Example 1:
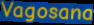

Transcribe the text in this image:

Vagosana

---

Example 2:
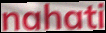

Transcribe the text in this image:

nahati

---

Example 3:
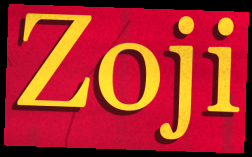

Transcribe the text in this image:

Zoji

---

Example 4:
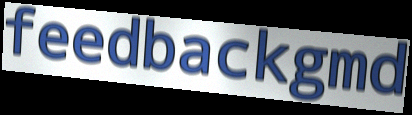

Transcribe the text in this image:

feedbackgmd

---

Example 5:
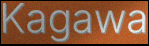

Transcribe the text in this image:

Kagawa